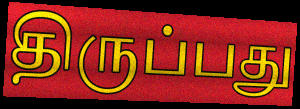
திருப்பது